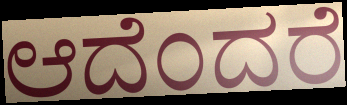
ಆದೆಂದರೆ